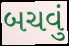
બચવું